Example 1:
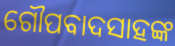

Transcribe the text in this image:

ଗୌପବାଦସାହଙ୍କ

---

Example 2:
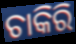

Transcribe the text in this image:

ଚାକିରି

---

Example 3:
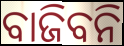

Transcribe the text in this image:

ବାଜିବନି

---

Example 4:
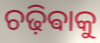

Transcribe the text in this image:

ଚଢ଼ିଵାକୁ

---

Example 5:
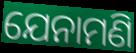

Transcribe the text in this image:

ଯେନାମଣି